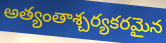
అత్యంతాశ్చర్యకరమైన